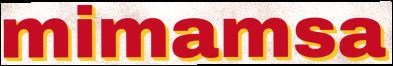
mimamsa